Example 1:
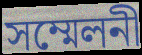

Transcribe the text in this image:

সম্মেলনী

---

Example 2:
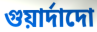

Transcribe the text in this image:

গুয়ার্দাদো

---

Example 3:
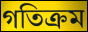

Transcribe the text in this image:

গতিক্রম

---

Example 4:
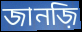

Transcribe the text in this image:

জানজ়ি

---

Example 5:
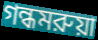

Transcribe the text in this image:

গন্ধমরুয়া